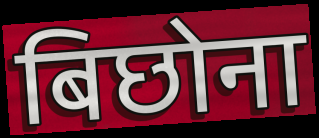
बिछोना